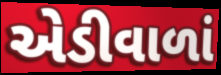
એડીવાળાં